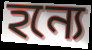
হন্যে